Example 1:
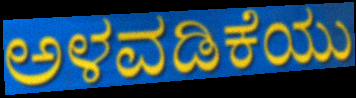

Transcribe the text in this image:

ಅಳವಡಿಕೆಯು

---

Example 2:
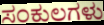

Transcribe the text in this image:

ಸಂಕುಲಗಳು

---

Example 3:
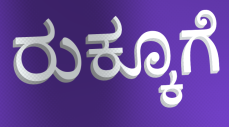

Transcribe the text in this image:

ರುಕ್ಕೂಗೆ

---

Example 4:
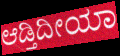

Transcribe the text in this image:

ಆಡ್ತಿದೀಯಾ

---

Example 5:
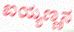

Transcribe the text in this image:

ಐಯ್ಯಣ್ಣನ